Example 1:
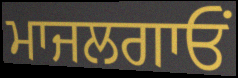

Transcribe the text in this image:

ਮਾਜਲਗਾਓਂ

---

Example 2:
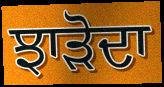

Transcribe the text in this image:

ਝਾੜੋਦਾ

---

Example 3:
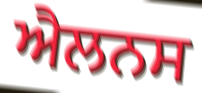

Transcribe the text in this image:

ਐਲਨਸ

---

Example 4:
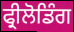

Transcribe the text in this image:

ਫ੍ਰੀਲੋਡਿੰਗ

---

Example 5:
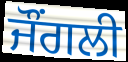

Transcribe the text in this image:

ਜੌਂਗਲੀ